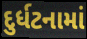
દુર્ધટનામાં